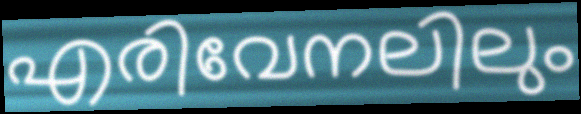
എരിവേനലിലും